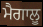
ਮੈਗਾਲੂ